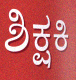
ಶಿಕ್ಷಕಿ